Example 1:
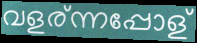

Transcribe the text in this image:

വളര്ന്നപ്പോള്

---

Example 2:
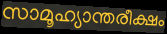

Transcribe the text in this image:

സാമൂഹ്യാന്തരീക്ഷം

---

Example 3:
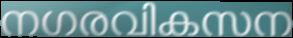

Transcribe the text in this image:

നഗരവികസന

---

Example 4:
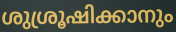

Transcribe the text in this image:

ശുശ്രൂഷിക്കാനും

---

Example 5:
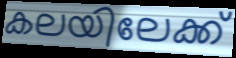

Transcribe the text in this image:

കലയിലേക്ക്